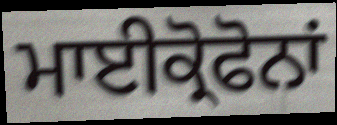
ਮਾਈਕ੍ਰੋਫੋਨਾਂ